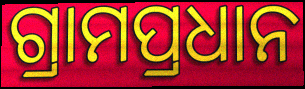
ଗ୍ରାମପ୍ରଧାନ